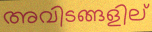
അവിടങ്ങളില്